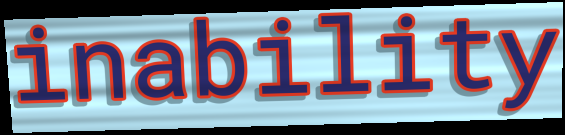
inability